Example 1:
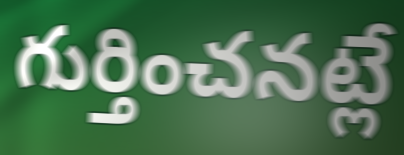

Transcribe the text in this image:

గుర్తించనట్లే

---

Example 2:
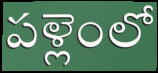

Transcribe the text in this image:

పళ్లెంలో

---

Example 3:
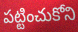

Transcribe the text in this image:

పట్టించుకోని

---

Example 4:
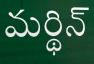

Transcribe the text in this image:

మర్థిన్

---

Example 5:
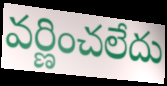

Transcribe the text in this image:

వర్ణించలేదు